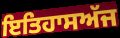
ਇਤਿਹਾਸਅੱਜ